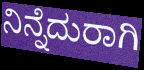
ನಿನ್ನೆದುರಾಗಿ